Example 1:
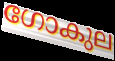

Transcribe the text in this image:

ഗോകുല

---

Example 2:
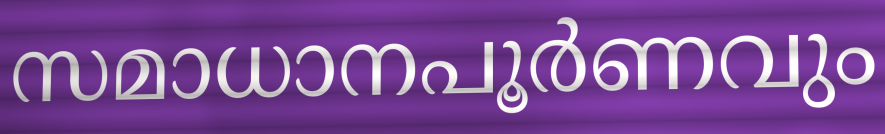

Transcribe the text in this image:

സമാധാനപൂർണവും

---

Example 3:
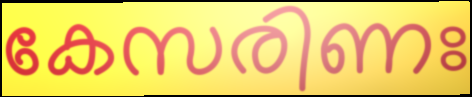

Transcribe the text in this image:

കേസരിണഃ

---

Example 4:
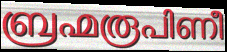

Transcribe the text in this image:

ബ്രഹ്മരൂപിണീ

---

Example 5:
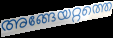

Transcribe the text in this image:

അങ്ങേയറ്റത്തെ